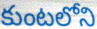
కుంటలోని